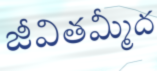
జీవితమ్మీద